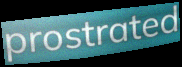
prostrated